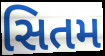
સિતમ